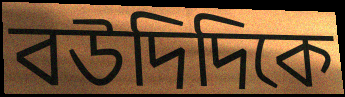
বউদিদিকে